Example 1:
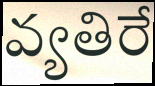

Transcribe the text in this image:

వ్యతిరే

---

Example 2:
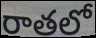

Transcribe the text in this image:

రాతలో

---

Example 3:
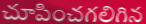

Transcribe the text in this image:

చూపించగలిగిన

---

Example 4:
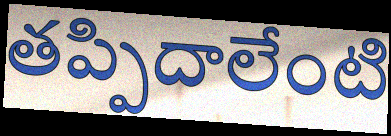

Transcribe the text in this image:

తప్పిదాలేంటి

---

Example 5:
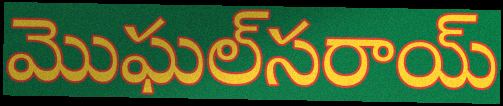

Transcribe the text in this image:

మొఘల్‌సరాయ్